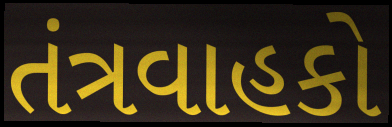
તંત્રવાહકો